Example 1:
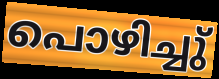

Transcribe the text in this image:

പൊഴിച്ചു്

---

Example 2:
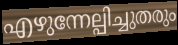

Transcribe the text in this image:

എഴുന്നേല്പിച്ചുതരും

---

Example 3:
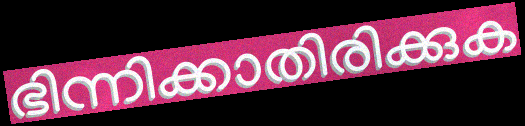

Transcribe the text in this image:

ഭിന്നിക്കാതിരിക്കുക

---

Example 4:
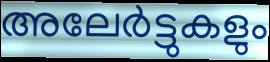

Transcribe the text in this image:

അലേർട്ടുകളും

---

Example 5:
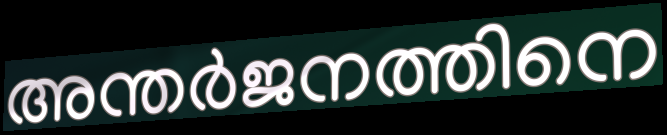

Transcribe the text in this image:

അന്തർജനത്തിനെ